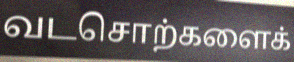
வடசொற்களைக்